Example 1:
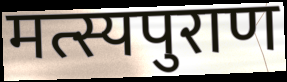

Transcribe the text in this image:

मत्स्यपुराण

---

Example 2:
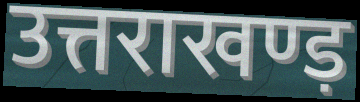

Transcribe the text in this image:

उत्तराखण्ड़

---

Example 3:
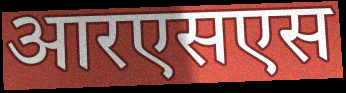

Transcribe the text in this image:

आरएसएस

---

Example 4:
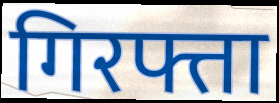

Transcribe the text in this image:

गिरफ्ता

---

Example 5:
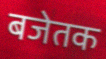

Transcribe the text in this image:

बजेतक